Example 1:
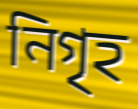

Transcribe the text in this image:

নিগৃহ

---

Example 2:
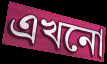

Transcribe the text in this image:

এখনো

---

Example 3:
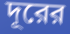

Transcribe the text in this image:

দূরের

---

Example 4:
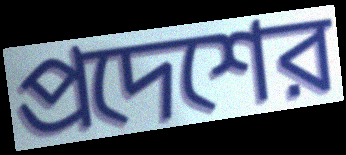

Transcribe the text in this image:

প্রদেশের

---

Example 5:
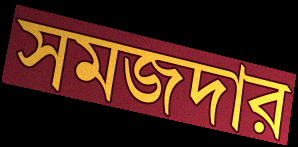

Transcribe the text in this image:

সমজদার